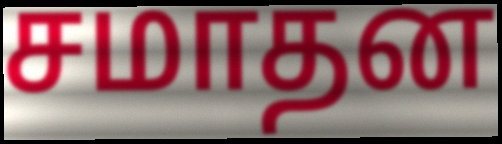
சமாதன